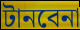
টানবেনা